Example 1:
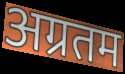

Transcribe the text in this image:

अग्रतम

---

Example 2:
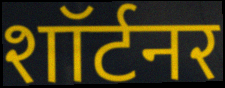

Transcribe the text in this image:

शॉर्टनर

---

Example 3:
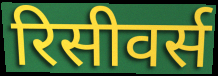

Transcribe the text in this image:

रिसीवर्स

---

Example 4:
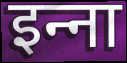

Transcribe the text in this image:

इन्ना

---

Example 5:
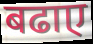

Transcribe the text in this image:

बढाए